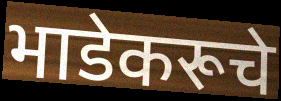
भाडेकरूचे